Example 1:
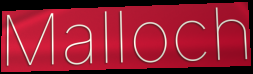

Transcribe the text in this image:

Malloch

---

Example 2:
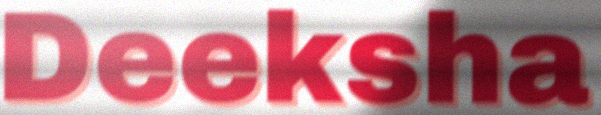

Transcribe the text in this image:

Deeksha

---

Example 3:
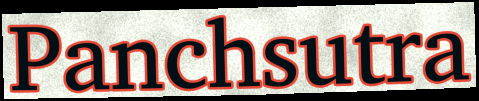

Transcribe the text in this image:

Panchsutra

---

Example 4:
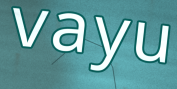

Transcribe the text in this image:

vayu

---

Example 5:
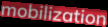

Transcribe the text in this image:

mobilization